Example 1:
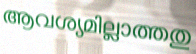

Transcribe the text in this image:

ആവശ്യമില്ലാത്തതു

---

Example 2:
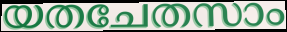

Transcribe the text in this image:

യതചേതസാം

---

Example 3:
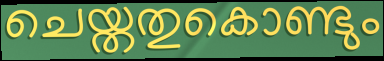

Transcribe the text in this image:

ചെയ്തതുകൊണ്ടും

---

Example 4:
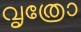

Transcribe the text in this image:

വൃത്രോ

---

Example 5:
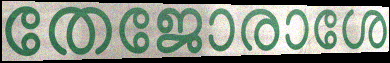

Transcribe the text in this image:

തേജോരാശേ